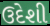
ઉદેશી